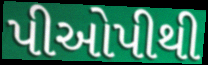
પીઓપીથી